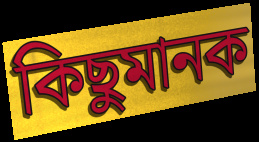
কিছুমানক